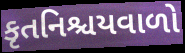
કૃતનિશ્ચયવાળો